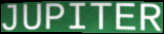
JUPITER